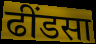
ढींडसा